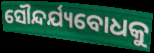
ସୌନ୍ଦର୍ଯ୍ୟବୋଧକୁ